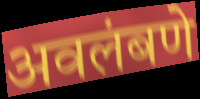
अवलंबणे